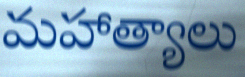
మహాత్యాలు